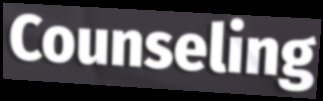
Counseling